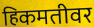
हिकमतीवर